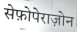
सेफ़ोपेराज़ोन